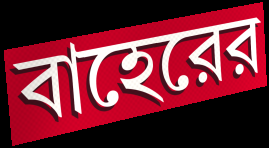
বাহেরের